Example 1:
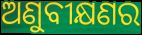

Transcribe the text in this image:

ଅଣୁବୀକ୍ଷଣର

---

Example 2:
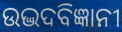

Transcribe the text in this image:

ଉଦ୍ଭଦବିଜ୍ଞାନୀ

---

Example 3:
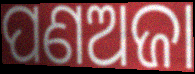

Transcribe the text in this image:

ପଣଅଜା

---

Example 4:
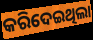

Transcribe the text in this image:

କରିଦେଇଥିଲା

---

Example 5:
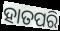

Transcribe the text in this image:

ହାତପରି